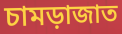
চামড়াজাত